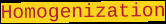
Homogenization